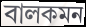
বালকমন